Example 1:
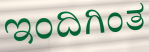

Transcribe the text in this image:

ಇಂದಿಗಿಂತ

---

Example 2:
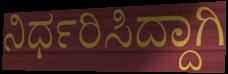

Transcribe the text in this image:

ನಿರ್ಧರಿಸಿದ್ದಾಗಿ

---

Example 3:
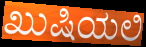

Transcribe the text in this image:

ಖುಷಿಯಲಿ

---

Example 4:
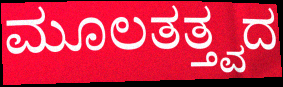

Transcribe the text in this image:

ಮೂಲತತ್ತ್ವದ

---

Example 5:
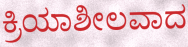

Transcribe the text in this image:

ಕ್ರಿಯಾಶೀಲವಾದ